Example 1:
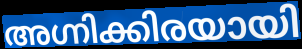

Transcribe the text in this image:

അഗ്നിക്കിരയായി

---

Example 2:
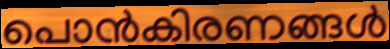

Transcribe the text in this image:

പൊൻകിരണങ്ങൾ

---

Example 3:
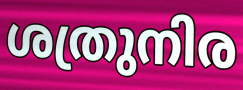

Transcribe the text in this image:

ശത്രുനിര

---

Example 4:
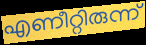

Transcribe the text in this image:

എണീറ്റിരുന്ന്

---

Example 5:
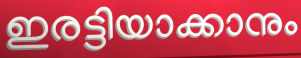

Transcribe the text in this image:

ഇരട്ടിയാക്കാനും